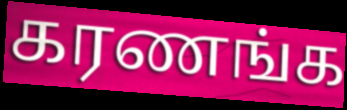
கரணங்க